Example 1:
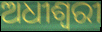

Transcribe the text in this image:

ଅଧୀଶ୍ୱରୀ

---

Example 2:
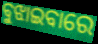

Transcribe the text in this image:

ବୁଝାଇବାରେ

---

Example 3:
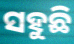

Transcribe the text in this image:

ସହୁଛି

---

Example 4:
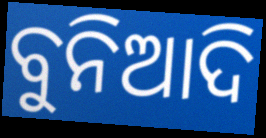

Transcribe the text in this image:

ବୁନିଆଦି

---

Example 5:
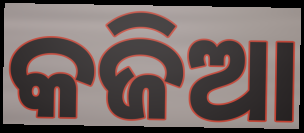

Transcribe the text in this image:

କଜିଆ